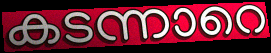
കടന്നാറെ